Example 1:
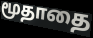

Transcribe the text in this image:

மூதாதை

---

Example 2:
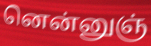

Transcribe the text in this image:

னென்னுஞ்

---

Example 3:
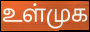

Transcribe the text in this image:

உள்முக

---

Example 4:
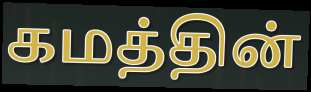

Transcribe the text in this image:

கமத்தின்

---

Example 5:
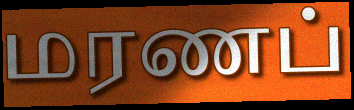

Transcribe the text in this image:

மரணப்